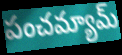
పంచమ్యామ్